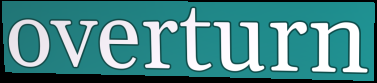
overturn